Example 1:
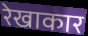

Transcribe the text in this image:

रेखाकार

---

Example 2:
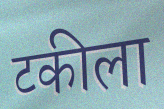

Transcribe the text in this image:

टकीला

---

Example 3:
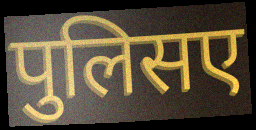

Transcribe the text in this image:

पुलिसए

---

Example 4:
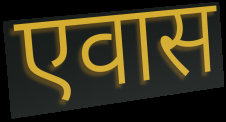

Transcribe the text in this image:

एवास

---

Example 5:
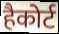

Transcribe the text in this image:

हैकोर्ट